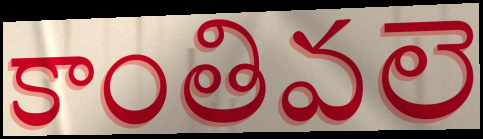
కాంతివలె